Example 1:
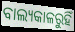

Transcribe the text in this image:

ବାଲ୍ୟକାଳରୁହିଁ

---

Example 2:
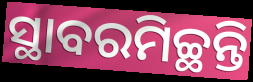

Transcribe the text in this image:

ସ୍ଥାବରମିଚ୍ଛନ୍ତି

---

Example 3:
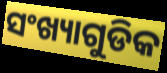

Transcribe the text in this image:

ସଂଖ୍ୟାଗୁଡିକ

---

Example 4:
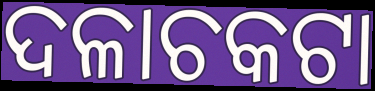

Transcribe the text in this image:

ଦଳାଚକଟା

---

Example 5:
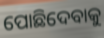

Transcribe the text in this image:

ପୋଛିଦେବାକୁ